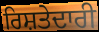
ਰਿਸ਼ਤੇਦਾਰੀ